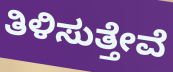
ತಿಳಿಸುತ್ತೇವೆ